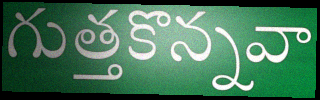
గుత్తకొన్నవా